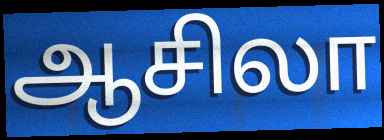
ஆசிலா